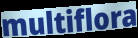
multiflora